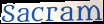
Sacram